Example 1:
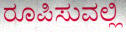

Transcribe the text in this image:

ರೂಪಿಸುವಲ್ಲಿ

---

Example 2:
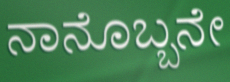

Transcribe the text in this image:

ನಾನೊಬ್ಬನೇ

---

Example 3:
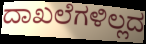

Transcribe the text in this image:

ದಾಖಲೆಗಳಿಲ್ಲದ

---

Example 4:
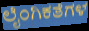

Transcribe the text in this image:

ಲೈಂಗಿಕತೆಗಳ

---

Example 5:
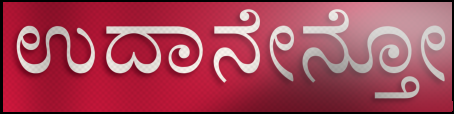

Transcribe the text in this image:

ಉದಾನೇನ್ತೋ